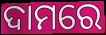
ଦାମରେ